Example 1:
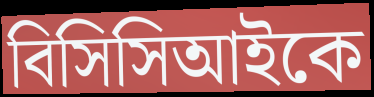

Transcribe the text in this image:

বিসিসিআইকে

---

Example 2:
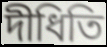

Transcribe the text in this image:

দীধিতি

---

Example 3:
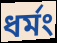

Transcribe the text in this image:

ধর্মং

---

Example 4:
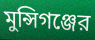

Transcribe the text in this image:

মুন্সিগঞ্জের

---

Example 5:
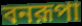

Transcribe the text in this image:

বনরূপা